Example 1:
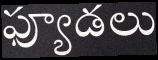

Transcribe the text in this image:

ఫ్యూడలు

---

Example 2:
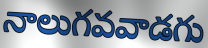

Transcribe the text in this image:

నాలుగవవాడగు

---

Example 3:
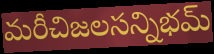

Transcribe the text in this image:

మరీచిజలసన్నిభమ్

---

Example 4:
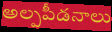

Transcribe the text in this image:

అల్పపీడనాలు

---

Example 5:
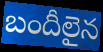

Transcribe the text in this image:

బందీలైన